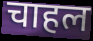
चाहल